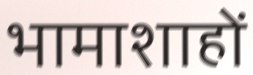
भामाशाहों